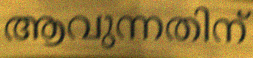
ആവുന്നതിന്